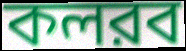
কলরব